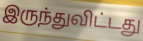
இருந்துவிட்டது